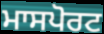
ਮਾਸਪੋਰਟ